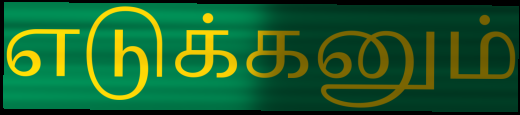
எடுக்கனும்